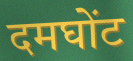
दमघोंट